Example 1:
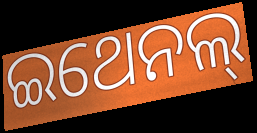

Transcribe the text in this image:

ଇଥେନଲ୍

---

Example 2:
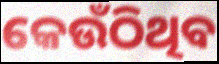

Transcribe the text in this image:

କେଉଁଠିଥିବ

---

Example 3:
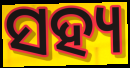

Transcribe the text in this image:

ସହ୍ୟ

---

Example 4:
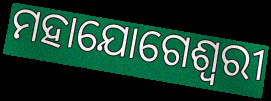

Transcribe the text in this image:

ମହାଯୋଗେଶ୍ୱରୀ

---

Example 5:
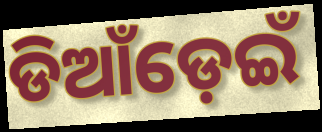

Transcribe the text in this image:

ଡିଆଁଡ଼େଇଁ